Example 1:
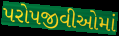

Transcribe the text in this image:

પરોપજીવીઓમાં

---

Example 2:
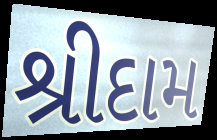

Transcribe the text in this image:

શ્રીદામ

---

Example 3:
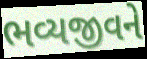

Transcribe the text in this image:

ભવ્યજીવને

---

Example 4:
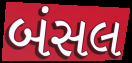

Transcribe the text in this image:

બંસલ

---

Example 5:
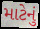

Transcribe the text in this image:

માટેનું